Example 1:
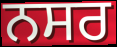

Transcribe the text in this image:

ਨਸਰ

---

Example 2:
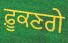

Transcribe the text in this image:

ਫ਼ੂਕਣਗੇ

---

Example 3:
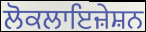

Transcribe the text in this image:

ਲੋਕਲਾਇਜ਼ੇਸ਼ਨ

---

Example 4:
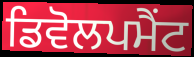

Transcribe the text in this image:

ਡਿਵੋਲਪਮੈਂਟ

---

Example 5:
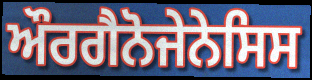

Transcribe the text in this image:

ਔਰਗੈਨੋਜੇਨੇਸਿਸ